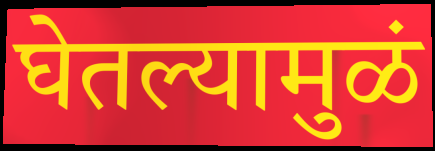
घेतल्यामुळं